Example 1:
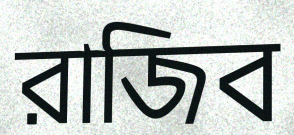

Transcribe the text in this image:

রাজিব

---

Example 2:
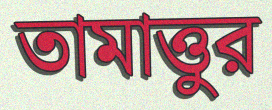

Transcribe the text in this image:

তামাত্তুর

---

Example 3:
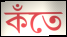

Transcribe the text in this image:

কঁতে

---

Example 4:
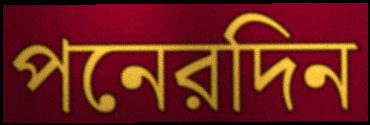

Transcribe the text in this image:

পনেরদিন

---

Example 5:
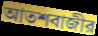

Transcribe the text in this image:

আতশবাজীর